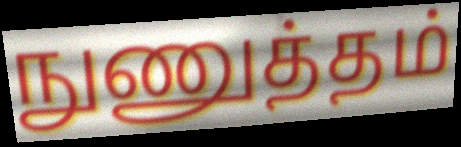
நுணுத்தம்